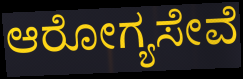
ಆರೋಗ್ಯಸೇವೆ